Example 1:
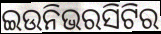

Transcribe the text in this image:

ଇଉନିଭରସିଟିର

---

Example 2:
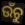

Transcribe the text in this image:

ଉଁଚୁ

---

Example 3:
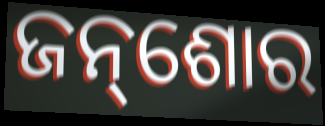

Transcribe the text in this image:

ଜନ୍‌ଶୋର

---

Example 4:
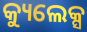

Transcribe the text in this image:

କ୍ୟୁଲେକ୍ସ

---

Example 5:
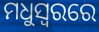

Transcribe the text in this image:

ମଧୁସ୍ୱରରେ